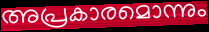
അപ്രകാരമൊന്നും